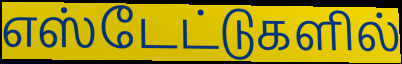
எஸ்டேட்டுகளில்